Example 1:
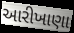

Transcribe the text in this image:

આરીખાણા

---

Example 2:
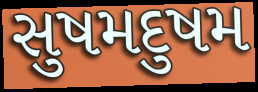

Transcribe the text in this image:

સુષમદુષમ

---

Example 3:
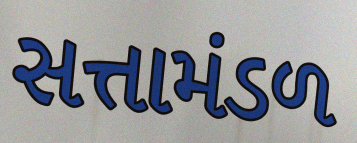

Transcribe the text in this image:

સત્તામંડળ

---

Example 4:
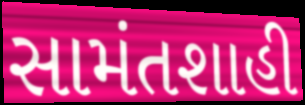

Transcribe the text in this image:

સામંતશાહી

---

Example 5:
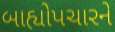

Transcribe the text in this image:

બાહ્યોપચારને